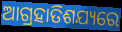
ଆଗ୍ରହାତିଶଯ୍ୟରେ